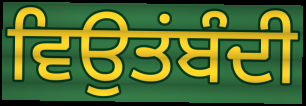
ਵਿਉਤਂਬੰਦੀ